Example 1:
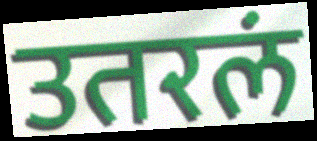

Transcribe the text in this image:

उतरलं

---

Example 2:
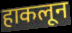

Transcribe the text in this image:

हाकलून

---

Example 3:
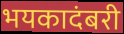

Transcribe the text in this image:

भयकादंबरी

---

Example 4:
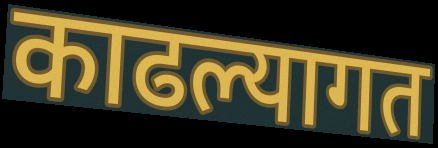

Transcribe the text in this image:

काढल्यागत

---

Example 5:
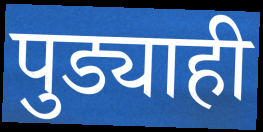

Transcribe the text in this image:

पुड्याही